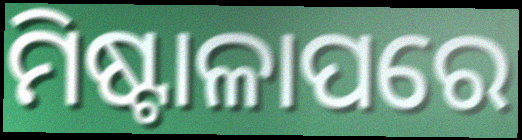
ମିଷ୍ଟାଳାପରେ